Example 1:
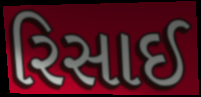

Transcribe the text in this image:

રિસાઈ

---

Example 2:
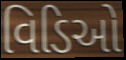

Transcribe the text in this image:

વિડિઓ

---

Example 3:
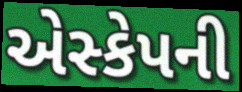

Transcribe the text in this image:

એસ્કેપની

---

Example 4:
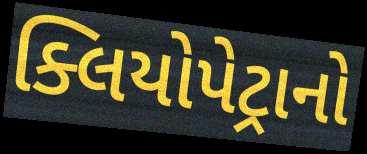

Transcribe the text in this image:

ક્લિયોપેટ્રાનો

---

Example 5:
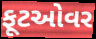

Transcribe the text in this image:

ફૂટઓવર